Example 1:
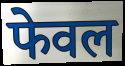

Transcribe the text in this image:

फेवल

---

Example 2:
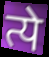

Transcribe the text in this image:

त्ये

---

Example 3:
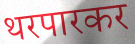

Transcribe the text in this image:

थरपारकर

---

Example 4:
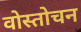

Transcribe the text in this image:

वोस्तोचन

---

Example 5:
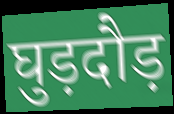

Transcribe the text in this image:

घुड़दौड़